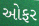
ઓફર